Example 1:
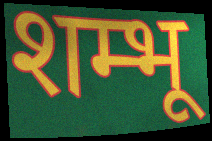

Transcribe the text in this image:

शम्भू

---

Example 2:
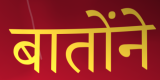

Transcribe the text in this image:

बातोंने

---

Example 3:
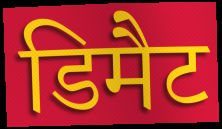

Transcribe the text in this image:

डिमैट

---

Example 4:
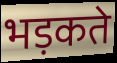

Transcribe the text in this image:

भड़कते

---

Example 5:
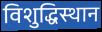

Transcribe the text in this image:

विशुद्धिस्थान